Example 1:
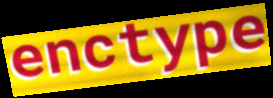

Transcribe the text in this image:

enctype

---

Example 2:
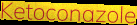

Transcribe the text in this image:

Ketoconazole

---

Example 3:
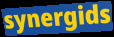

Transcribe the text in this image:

synergids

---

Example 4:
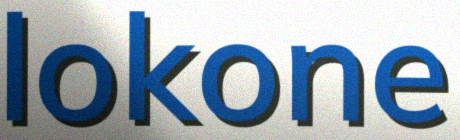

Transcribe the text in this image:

lokone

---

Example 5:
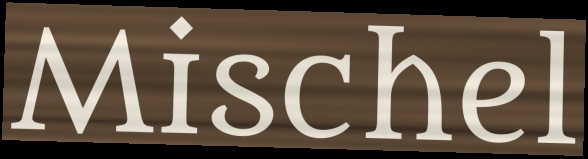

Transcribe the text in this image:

Mischel